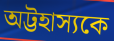
অট্টহাস্যকে